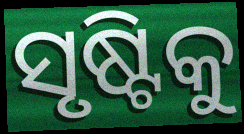
ସୃଷ୍ଟିକୁ